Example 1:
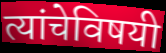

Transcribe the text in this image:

त्यांचेविषयी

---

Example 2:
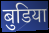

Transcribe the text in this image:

बुडिया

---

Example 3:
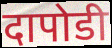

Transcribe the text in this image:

दापोडी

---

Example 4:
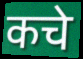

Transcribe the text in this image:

कचे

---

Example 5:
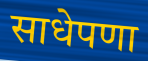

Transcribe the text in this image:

साधेपणा